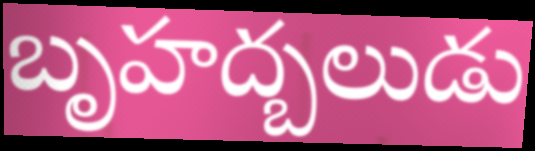
బృహద్బలుడు